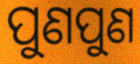
ପୁଣପୁଣ